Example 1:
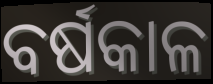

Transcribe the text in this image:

ବର୍ଷକାଳ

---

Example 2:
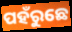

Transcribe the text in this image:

ପହଁରୁଛେ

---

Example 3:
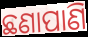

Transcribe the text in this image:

ଛଣାପାଣି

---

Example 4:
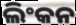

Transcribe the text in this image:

ଲିଂକନ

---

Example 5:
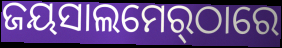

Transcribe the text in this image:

ଜୟସାଲମେର୍‌ଠାରେ